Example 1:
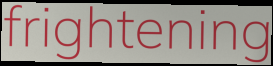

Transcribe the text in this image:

frightening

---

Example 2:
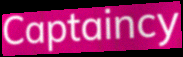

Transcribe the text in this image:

Captaincy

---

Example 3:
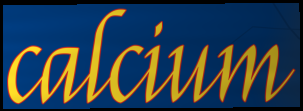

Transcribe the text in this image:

calcium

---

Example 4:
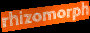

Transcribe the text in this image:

rhizomorph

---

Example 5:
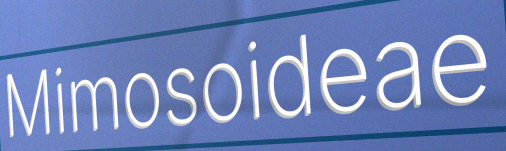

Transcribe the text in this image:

Mimosoideae